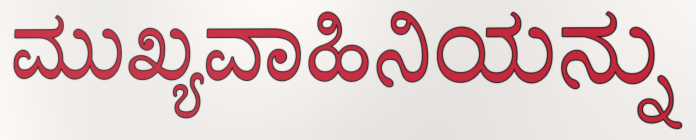
ಮುಖ್ಯವಾಹಿನಿಯನ್ನು